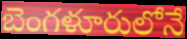
బెంగళూరులోనే